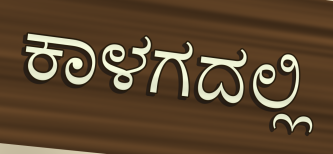
ಕಾಳಗದಲ್ಲಿ